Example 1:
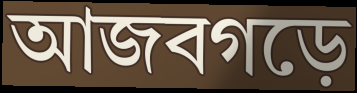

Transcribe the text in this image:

আজবগড়ে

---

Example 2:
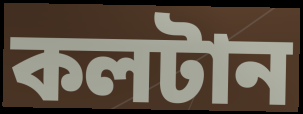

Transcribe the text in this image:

কলটান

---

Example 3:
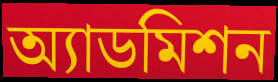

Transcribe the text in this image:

অ্যাডমিশন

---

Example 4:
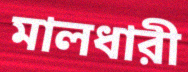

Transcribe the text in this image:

মালধারী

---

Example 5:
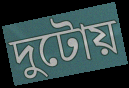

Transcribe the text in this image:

দুটোয়